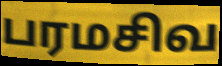
பரமசிவ